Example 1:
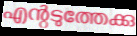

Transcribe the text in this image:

എന്റടുത്തേക്കു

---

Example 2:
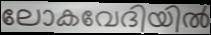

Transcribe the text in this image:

ലോകവേദിയിൽ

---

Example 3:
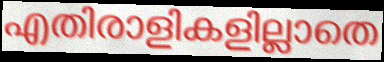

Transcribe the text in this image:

എതിരാളികളില്ലാതെ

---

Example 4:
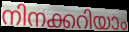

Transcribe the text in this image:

നിനക്കറിയാം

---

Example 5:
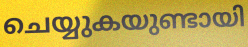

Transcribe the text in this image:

ചെയ്യുകയുണ്ടായി